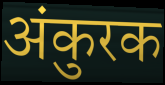
अंकुरक